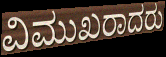
ವಿಮುಖರಾದರು